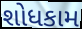
શોધકામ